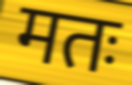
मतः